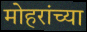
मोहरांच्या